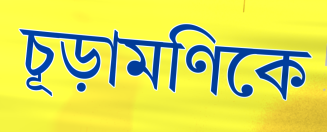
চূড়ামণিকে